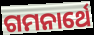
ଗମନାର୍ଥେ